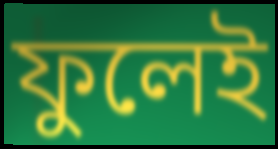
ফুলেই